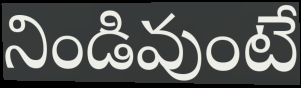
నిండివుంటే